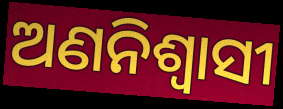
ଅଣନିଶ୍ୱାସୀ